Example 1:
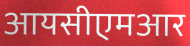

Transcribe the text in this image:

आयसीएमआर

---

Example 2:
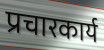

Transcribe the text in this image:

प्रचारकार्य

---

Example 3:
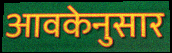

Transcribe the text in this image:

आवकेनुसार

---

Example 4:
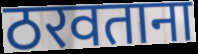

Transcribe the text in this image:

ठरवताना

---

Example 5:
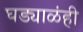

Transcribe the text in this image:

घड्याळंही